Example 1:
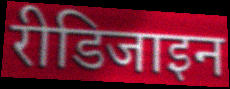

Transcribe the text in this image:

रीडिजाइन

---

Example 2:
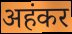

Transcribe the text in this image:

अहंकर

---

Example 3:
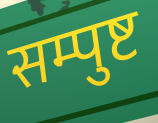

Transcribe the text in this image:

सम्पुष्ट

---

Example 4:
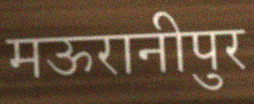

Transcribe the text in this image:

मऊरानीपुर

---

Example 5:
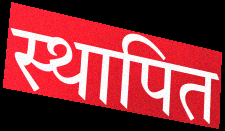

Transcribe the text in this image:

स्‍थापित